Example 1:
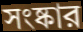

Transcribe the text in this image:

সংষ্কার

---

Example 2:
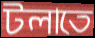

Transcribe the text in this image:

টলাতে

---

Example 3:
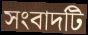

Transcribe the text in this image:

সংবাদটি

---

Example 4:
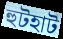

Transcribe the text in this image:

হুটহাট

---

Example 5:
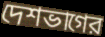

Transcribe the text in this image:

দেশভাগের